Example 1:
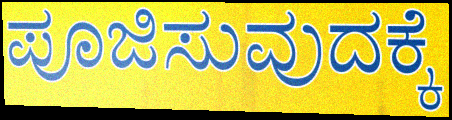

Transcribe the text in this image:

ಪೂಜಿಸುವುದಕ್ಕೆ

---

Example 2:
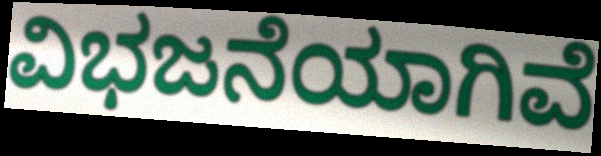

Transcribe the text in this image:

ವಿಭಜನೆಯಾಗಿವೆ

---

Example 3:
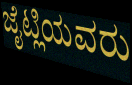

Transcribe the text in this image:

ಜೈಟ್ಲಿಯವರು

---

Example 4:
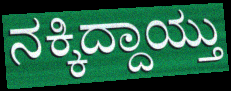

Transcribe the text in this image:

ನಕ್ಕಿದ್ದಾಯ್ತು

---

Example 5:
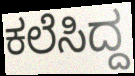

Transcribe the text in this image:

ಕಲೆಸಿದ್ದ